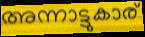
അന്നാട്ടുകാര്